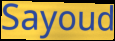
Sayoud